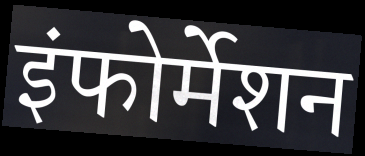
इंफोर्मेशन